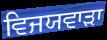
ਵਿਜਯਵਾੜਾ